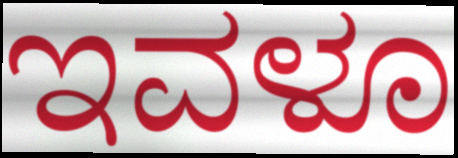
ಇವಳೂ